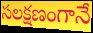
సలక్షణంగానే